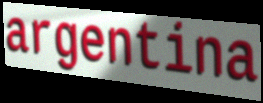
argentina